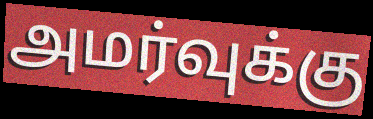
அமர்வுக்கு